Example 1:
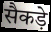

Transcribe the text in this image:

सैकड़े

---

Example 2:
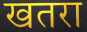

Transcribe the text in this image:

खतरा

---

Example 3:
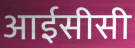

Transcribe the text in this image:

आईसीसी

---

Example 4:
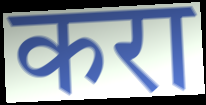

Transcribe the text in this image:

करा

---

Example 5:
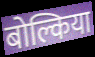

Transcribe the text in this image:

बोल्किया